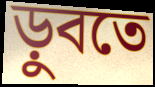
ড়ুবতে